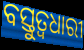
ବସ୍ତୁତ୍ୱଧାରୀ